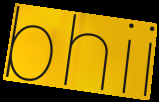
bhii